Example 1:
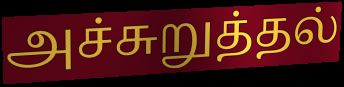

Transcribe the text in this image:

அச்சுறுத்தல்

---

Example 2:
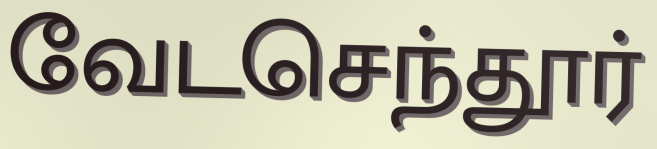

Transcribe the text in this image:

வேடசெந்தூர்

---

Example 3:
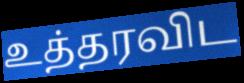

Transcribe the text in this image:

உத்தரவிட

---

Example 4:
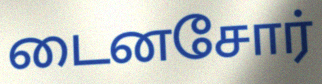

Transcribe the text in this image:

டைனசோர்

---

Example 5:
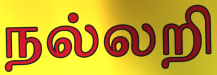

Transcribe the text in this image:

நல்லறி